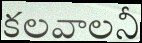
కలవాలనీ